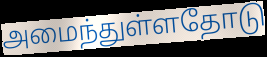
அமைந்துள்ளதோடு